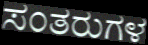
ಸಂತರುಗಳ